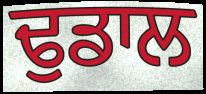
ਢੁਡਾਲ